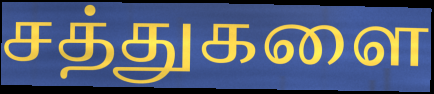
சத்துகளை